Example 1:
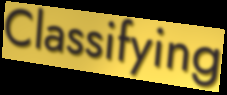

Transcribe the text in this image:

Classifying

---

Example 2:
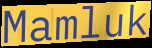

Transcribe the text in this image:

Mamluk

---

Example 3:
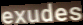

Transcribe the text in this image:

exudes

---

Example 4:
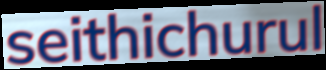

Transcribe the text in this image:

seithichurul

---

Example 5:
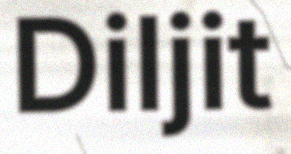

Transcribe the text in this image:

Diljit